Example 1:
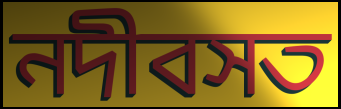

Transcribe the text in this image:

নদীবসত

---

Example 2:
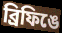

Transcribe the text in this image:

ব্রিফিঙে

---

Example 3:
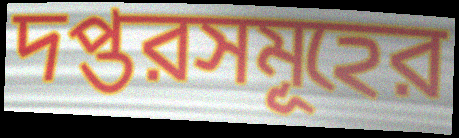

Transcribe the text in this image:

দপ্তরসমূহের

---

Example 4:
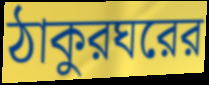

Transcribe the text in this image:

ঠাকুরঘরের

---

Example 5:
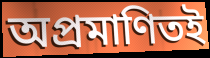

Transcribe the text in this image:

অপ্রমাণিতই